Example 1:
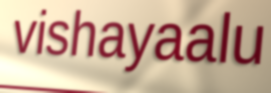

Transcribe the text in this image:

vishayaalu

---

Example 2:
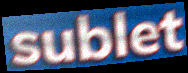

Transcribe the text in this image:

sublet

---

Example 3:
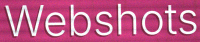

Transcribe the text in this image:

Webshots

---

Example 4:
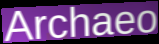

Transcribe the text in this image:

Archaeo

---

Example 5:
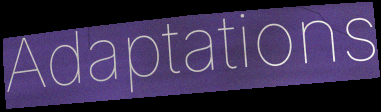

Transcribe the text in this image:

Adaptations